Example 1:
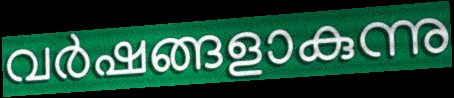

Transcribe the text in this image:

വർഷങ്ങളാകുന്നു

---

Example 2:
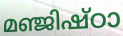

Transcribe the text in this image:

മഞ്ജിഷ്ഠാ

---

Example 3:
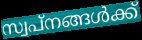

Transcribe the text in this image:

സ്വപ്നങ്ങൾക്ക്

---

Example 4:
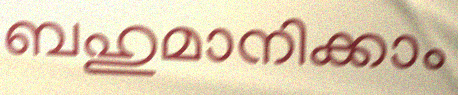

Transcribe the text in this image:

ബഹുമാനിക്കാം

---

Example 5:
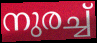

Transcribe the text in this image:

നുരച്ച്